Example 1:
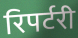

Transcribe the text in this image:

रिपर्टरी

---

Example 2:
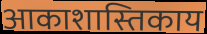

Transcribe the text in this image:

आकाशास्तिकाय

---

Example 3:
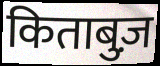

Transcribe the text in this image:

किताबुज़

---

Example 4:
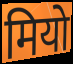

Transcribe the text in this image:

मियो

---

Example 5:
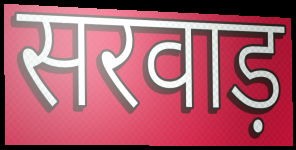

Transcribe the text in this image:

सरवाड़